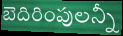
బెదిరింపులన్నీ